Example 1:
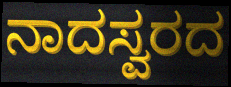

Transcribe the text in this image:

ನಾದಸ್ವರದ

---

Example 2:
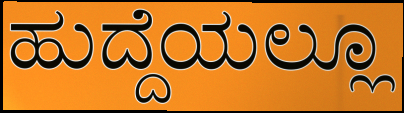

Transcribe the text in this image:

ಹುದ್ದೆಯಲ್ಲೂ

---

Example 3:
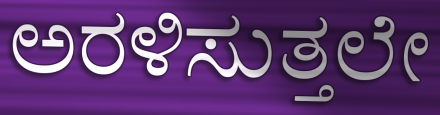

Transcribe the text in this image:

ಅರಳಿಸುತ್ತಲೇ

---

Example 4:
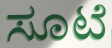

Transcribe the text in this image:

ಸೂಟೆ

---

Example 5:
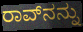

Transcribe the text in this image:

ರಾವ್‌ನನ್ನು